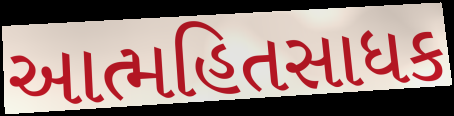
આત્મહિતસાધક